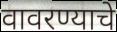
वावरण्याचे